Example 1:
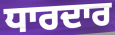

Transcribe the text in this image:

ਧਾਰਦਾਰ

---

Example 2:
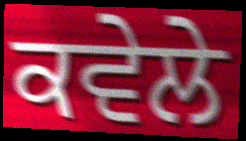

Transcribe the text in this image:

ਕਵੇਲੇ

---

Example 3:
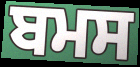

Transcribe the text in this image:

ਬਮਸ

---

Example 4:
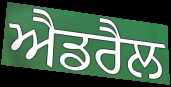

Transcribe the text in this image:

ਐਡਰੈਲ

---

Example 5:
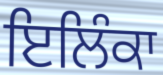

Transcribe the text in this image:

ਇਲਿੰਕਾ